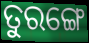
ତୁରଙ୍ଗେ